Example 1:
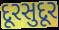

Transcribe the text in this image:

દૂરસુદૂર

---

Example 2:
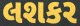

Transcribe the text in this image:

લશકર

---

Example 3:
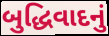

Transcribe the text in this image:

બુદ્ધિવાદનું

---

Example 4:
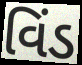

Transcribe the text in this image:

વિંડ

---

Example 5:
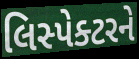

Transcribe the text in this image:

લિસ્પેક્ટરને